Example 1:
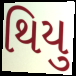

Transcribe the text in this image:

થિયુ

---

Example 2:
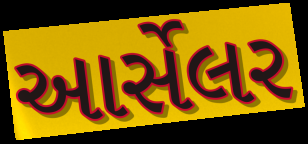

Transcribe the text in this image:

આર્સેલર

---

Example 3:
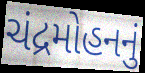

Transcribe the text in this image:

ચંદ્રમોહનનું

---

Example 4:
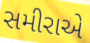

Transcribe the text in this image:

સમીરાએ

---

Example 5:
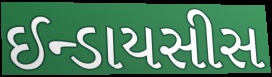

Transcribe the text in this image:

ઈન્ડાયસીસ